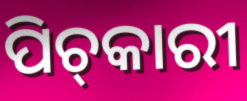
ପିଚ୍‌କାରୀ